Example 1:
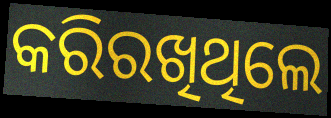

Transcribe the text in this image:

କରିରଖିଥିଲେ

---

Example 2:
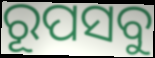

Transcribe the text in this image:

ରୂପସବୁ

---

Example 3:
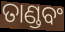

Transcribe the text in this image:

ତାଣ୍ଡବଂ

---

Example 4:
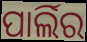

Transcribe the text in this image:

ପାର୍ଲିର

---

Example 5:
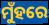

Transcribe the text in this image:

ମୁଁହରେ